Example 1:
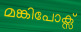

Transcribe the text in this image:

മങ്കിപോക്സ്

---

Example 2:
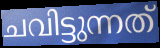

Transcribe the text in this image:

ചവിട്ടുന്നത്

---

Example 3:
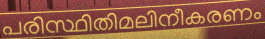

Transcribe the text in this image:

പരിസ്ഥിതിമലിനീകരണം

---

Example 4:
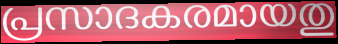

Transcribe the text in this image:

പ്രസാദകരമായതു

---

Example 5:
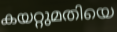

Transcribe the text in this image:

കയറ്റുമതിയെ